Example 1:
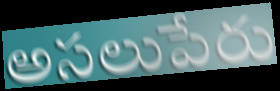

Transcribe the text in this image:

అసలుపేరు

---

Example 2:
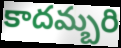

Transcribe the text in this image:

కాదమ్బరి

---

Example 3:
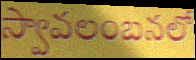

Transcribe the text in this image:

స్వావలంబనలో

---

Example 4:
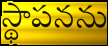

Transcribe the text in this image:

స్థాపనను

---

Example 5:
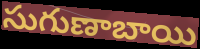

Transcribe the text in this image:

సుగుణాబాయి